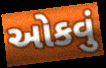
ઓકવું